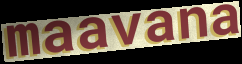
maavana